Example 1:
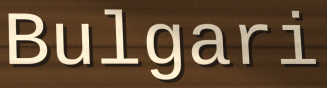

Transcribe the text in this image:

Bulgari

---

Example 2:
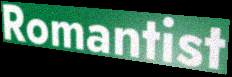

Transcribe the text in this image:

Romantist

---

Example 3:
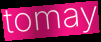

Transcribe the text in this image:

tomay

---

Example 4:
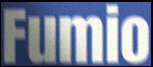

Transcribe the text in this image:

Fumio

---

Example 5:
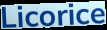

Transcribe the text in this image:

Licorice